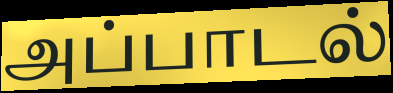
அப்பாடல்